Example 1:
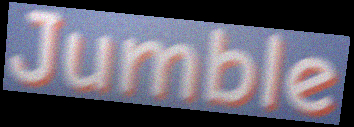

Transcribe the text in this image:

Jumble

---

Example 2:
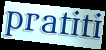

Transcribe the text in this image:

pratiti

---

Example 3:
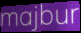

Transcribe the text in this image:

majbur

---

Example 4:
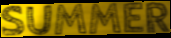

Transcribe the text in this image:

SUMMER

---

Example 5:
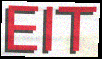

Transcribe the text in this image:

EIT